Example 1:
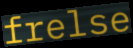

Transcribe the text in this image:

frelse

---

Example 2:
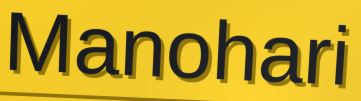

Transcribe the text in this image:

Manohari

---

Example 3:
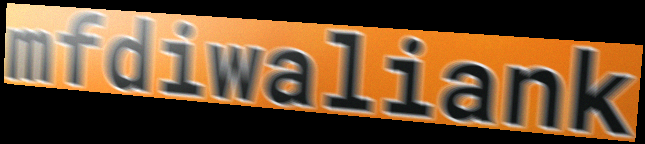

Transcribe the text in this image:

mfdiwaliank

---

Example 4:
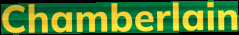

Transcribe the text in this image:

Chamberlain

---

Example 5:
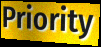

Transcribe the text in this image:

Priority